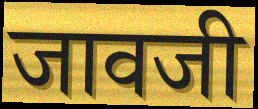
जावजी